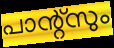
പാന്റ്സും